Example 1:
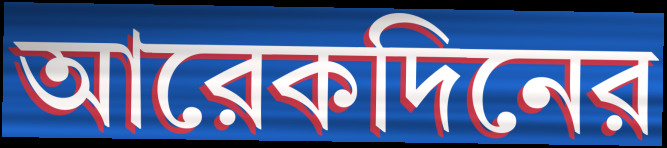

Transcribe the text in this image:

আরেকদিনের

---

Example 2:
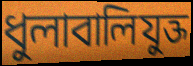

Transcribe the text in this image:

ধুলাবালিযুক্ত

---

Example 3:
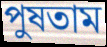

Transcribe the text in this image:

পুষতাম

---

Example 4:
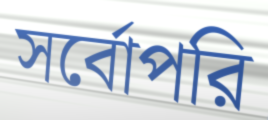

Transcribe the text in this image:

সর্বোপরি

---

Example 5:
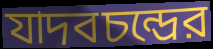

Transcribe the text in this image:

যাদবচন্দ্রের